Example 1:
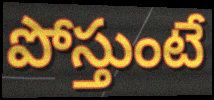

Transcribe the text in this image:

పోస్తుంటే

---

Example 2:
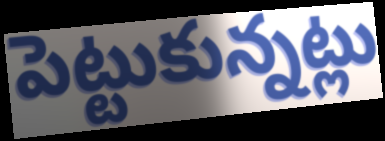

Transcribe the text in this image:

పెట్టుకున్నట్లు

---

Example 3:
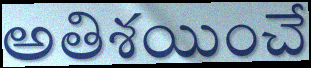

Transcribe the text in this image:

అతిశయించే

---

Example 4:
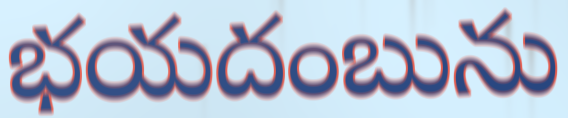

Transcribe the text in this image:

భయదంబును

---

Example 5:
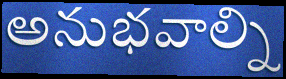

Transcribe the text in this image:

అనుభవాల్ని